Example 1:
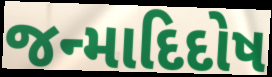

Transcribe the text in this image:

જન્માદિદોષ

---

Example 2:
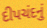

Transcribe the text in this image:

દીપચંદનું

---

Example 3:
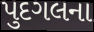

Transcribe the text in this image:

પુદગલના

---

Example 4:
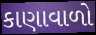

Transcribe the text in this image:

કાણાવાળો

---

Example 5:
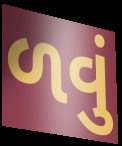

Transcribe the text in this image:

ળવું